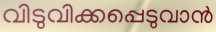
വിടുവിക്കപ്പെടുവാൻ